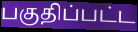
பகுதிப்பட்ட